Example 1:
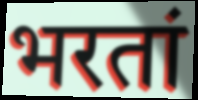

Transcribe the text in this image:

भरतां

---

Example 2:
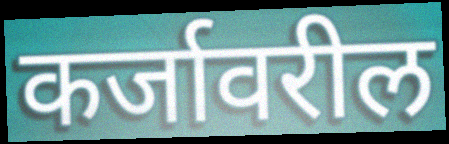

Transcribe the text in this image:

कर्जावरील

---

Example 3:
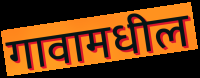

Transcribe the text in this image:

गावामधील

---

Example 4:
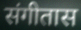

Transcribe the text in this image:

संगीतास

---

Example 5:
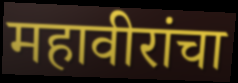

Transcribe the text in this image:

महावीरांचा